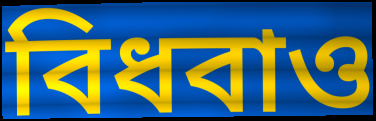
বিধবাও